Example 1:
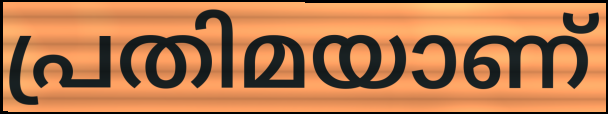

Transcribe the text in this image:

പ്രതിമയാണ്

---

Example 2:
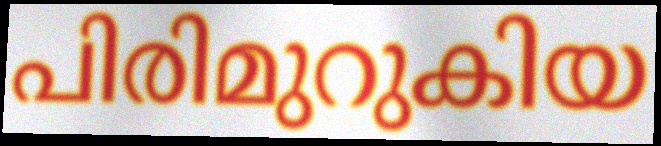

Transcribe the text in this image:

പിരിമുറുകിയ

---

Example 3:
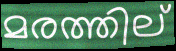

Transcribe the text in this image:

മരത്തില്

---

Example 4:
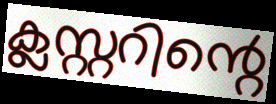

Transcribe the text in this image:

ക്ലസ്റ്ററിന്റെ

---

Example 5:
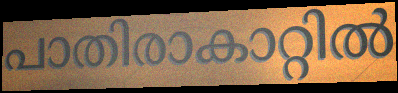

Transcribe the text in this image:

പാതിരാകാറ്റിൽ